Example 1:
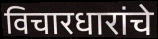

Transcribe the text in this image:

विचारधारांचे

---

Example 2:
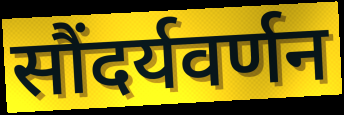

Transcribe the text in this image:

सौंदर्यवर्णन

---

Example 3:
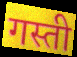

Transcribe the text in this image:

गस्ती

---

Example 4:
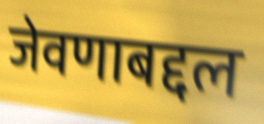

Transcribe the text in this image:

जेवणाबद्दल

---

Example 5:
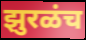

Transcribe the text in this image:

झुरळंच